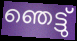
ഞെട്ടു്